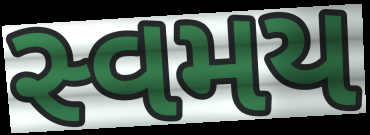
સ્વમય